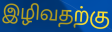
இழிவதற்கு